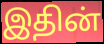
இதின்